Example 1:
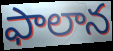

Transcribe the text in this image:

ఫాలాన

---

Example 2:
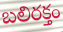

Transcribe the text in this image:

బలిరక్తం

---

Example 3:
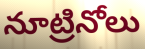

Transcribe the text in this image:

నూట్రినోలు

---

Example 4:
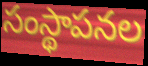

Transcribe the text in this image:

సంస్థాపనల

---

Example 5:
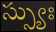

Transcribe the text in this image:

స్స్యుః